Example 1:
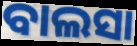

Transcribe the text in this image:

ବାଲସା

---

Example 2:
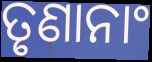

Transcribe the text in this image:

ତୃଣାନାଂ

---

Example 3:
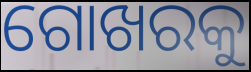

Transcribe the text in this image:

ଗୋଖରକୁ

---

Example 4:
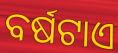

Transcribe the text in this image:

ବର୍ଷଟାଏ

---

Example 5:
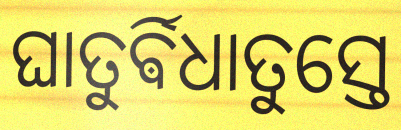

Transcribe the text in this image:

ଘାତୁର୍ଵିଧାତୁସ୍ତେ